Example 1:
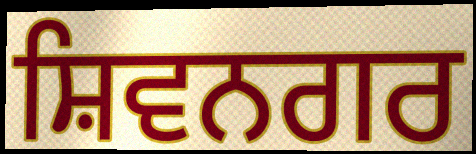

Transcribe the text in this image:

ਸ਼ਿਵਨਗਰ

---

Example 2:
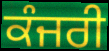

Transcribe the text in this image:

ਕੰਜਰੀ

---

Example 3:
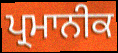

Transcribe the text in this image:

ਪ੍ਰਮਾਨੀਕ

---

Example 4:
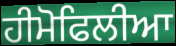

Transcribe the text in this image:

ਹੀਮੋਫਿਲੀਆ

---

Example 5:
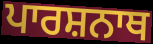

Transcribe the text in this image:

ਪਾਰਸ਼ਨਾਥ